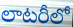
లాటరీలో